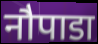
नौपाडा